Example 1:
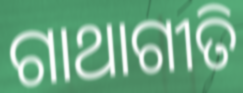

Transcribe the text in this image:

ଗାଥାଗୀତି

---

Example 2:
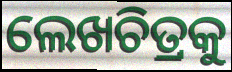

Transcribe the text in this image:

ଲେଖଚିତ୍ରକୁ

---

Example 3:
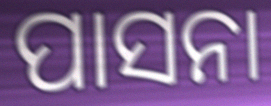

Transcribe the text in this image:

ପାସନା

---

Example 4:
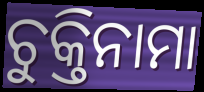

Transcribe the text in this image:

ଚୁକ୍ତିନାମା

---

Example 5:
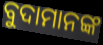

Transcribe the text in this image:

ବୁଦାମାନଙ୍କ